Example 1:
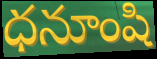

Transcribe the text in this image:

ధనూంషి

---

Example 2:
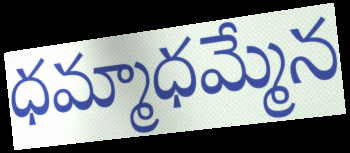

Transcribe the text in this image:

ధమ్మాధమ్మేన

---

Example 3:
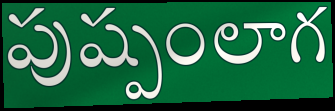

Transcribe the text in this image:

పుష్పంలాగ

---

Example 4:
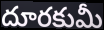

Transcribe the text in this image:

దూరకుమీ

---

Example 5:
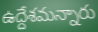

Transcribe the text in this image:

ఉద్దేశమన్నారు